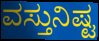
ವಸ್ತುನಿಷ್ಟ